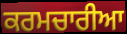
ਕਰਮਚਾਰੀਆ